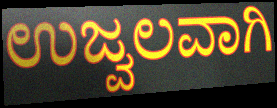
ಉಜ್ವಲವಾಗಿ